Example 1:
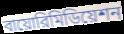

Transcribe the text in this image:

বায়োরিমিডিয়েশন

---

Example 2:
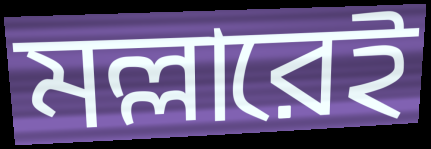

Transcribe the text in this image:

মল্লারেই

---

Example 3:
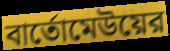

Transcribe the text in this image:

বার্তোমেউয়ের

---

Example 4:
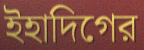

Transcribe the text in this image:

ইহাদিগের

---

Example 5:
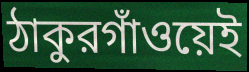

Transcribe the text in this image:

ঠাকুরগাঁওয়েই